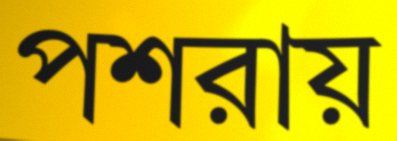
পশরায়